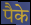
पैके